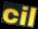
cil